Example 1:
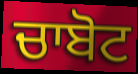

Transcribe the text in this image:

ਚਾਬੋਟ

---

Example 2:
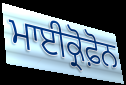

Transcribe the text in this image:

ਮਾਈਕ੍ਰੋਫ਼ੋਨ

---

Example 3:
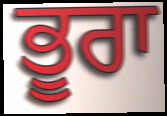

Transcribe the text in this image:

ਭੂਰਾ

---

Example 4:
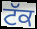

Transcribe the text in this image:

ਟੱਕ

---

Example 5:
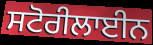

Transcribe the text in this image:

ਸਟੋਰੀਲਾਈਨ